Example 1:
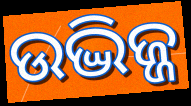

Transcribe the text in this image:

ଉଦ୍ଭିଜ୍ଜ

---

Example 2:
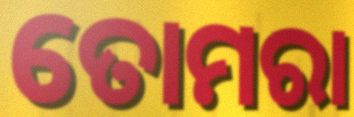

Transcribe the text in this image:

ତୋମରା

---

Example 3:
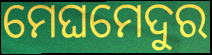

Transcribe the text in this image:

ମେଘମେଦୁର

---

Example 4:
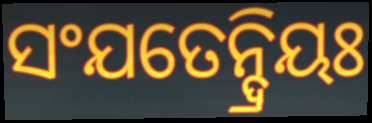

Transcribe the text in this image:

ସଂଯତେନ୍ଦ୍ରିୟଃ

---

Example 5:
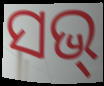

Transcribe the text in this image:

ସଭ୍